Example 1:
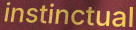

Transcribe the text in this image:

instinctual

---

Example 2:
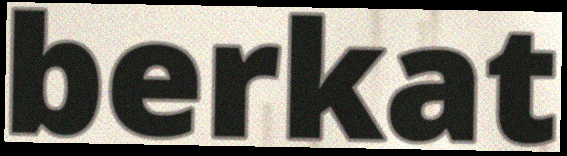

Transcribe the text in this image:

berkat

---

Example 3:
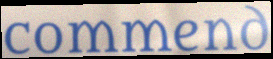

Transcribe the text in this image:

commend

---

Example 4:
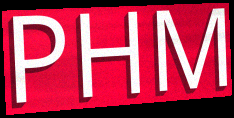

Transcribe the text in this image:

PHM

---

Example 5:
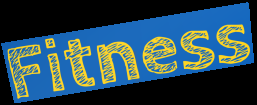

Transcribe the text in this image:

Fitness